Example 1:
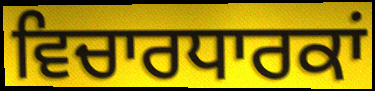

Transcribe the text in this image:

ਵਿਚਾਰਧਾਰਕਾਂ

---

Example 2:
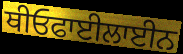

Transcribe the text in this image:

ਥੀਓਫਾਈਲਾਈਨ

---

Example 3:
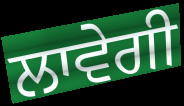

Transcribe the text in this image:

ਲਾਵੇਗੀ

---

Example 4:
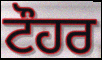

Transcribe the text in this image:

ਟੌਹਰ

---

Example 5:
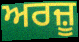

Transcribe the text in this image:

ਅਰਜ਼ੂ